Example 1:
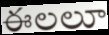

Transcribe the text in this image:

ఈలలూ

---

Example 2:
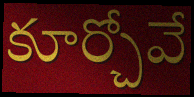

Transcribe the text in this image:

కూర్చోవే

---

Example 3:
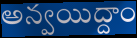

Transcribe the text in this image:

అన్వయిద్దాం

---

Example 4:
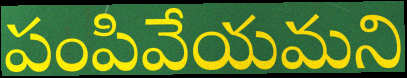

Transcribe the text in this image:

పంపివేయమని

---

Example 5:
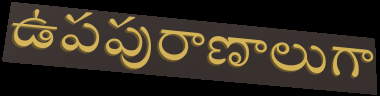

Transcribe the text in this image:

ఉపపురాణాలుగా